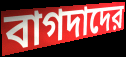
বাগদাদের